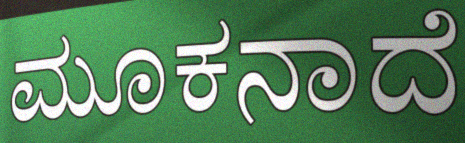
ಮೂಕನಾದೆ